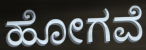
ಹೋಗವೆ